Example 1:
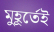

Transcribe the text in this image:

মুহূর্তেই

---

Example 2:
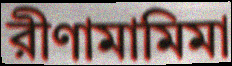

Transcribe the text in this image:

রীণামামিমা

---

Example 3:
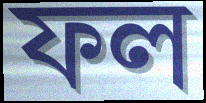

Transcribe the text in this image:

ফল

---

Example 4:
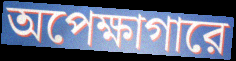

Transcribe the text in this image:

অপেক্ষাগারে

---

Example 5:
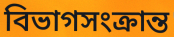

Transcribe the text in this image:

বিভাগসংক্রান্ত